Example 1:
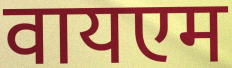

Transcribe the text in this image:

वायएम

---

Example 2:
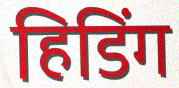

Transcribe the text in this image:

हिडिंग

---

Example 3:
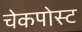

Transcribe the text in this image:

चेकपोस्ट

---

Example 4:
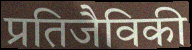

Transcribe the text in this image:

प्रतिजैविकी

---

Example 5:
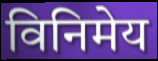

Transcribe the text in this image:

विनिमेय